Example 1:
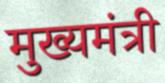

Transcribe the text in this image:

मुख्यमंत्री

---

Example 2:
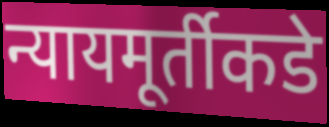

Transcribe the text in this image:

न्यायमूर्तीकडे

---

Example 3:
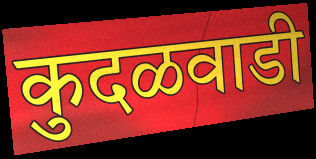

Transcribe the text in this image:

कुदळवाडी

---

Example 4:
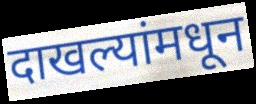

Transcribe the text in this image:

दाखल्यांमधून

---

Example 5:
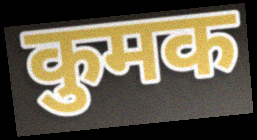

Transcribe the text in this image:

कुमक